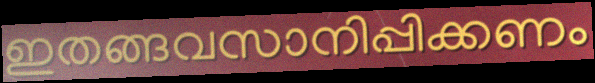
ഇതങ്ങവസാനിപ്പിക്കണം